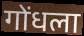
गोंधला